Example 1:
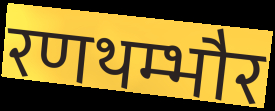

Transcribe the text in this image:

रणथम्भौर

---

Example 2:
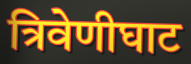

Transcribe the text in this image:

त्रिवेणीघाट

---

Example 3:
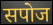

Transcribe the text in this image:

सपोज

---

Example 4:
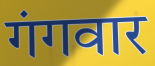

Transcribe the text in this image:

गंगवार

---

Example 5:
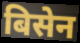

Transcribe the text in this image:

बिसेन